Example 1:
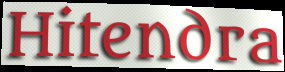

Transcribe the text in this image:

Hitendra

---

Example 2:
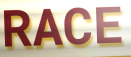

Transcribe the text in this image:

RACE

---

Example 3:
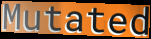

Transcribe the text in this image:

Mutated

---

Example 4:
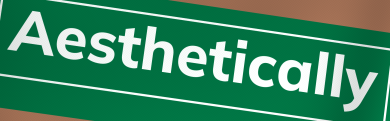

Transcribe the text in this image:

Aesthetically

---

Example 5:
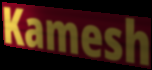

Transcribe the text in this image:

Kamesh